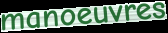
manoeuvres